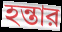
হন্তার